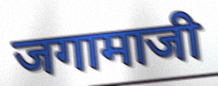
जगामाजी